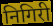
निगिरी